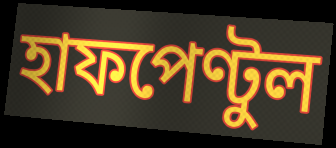
হাফপেণ্টুল